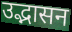
उद्भासन